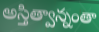
అస్తిత్వాన్నంతా